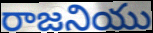
రాజనియు